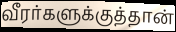
வீரர்களுக்குத்தான்